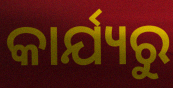
କାର୍ଯ୍ୟରୁ